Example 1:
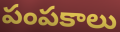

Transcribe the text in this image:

పంపకాలు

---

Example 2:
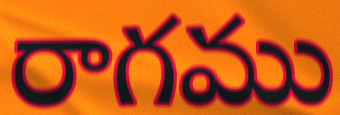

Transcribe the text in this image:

రాగము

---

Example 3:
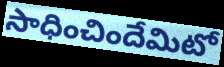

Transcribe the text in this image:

సాధించిందేమిటో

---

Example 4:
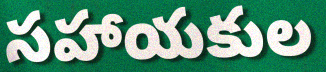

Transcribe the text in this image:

సహాయకుల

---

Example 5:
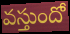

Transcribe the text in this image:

వస్తుందో